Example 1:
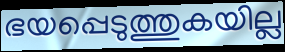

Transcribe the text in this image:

ഭയപ്പെടുത്തുകയില്ല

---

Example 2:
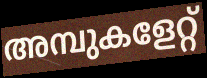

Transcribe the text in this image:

അമ്പുകളേറ്റ്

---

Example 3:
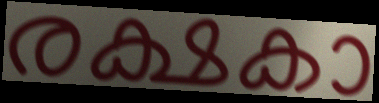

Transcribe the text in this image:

രക്ഷകാ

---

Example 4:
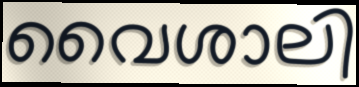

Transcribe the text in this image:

വൈശാലി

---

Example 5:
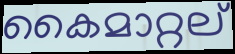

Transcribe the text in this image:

കൈമാറ്റല്